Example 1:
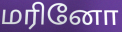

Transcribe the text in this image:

மரினோ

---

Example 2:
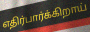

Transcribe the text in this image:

எதிர்பார்க்கிறாய்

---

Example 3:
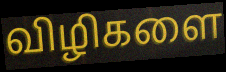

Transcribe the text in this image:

விழிகளை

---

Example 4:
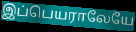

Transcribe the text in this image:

இப்பெயராலேயே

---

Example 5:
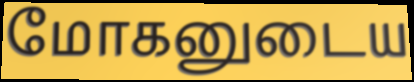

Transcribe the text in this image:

மோகனுடைய